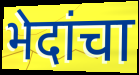
भेदांचा